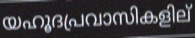
യഹൂദപ്രവാസികളില്